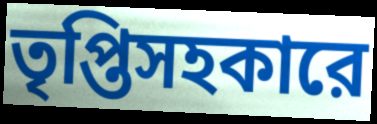
তৃপ্তিসহকারে